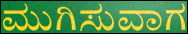
ಮುಗಿಸುವಾಗ